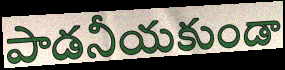
పాడనీయకుండా